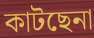
কাটছেনা